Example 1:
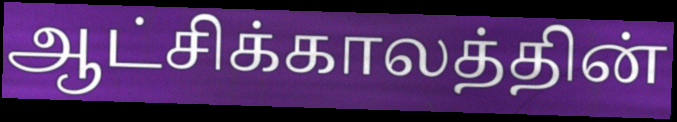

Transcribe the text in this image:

ஆட்சிக்காலத்தின்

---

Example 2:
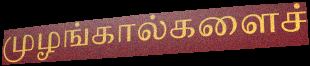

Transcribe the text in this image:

முழங்கால்களைச்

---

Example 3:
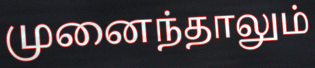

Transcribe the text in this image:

முனைந்தாலும்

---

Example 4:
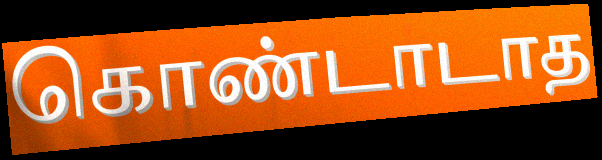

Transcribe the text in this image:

கொண்டாடாத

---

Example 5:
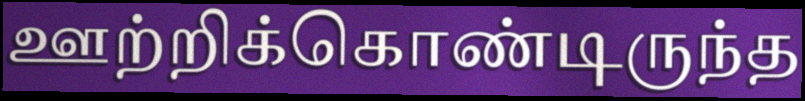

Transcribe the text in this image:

ஊற்றிக்கொண்டிருந்த